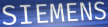
SIEMENS